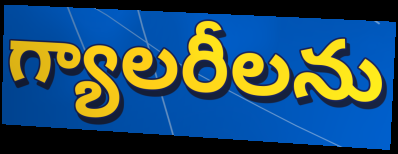
గ్యాలరీలను